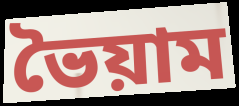
ভৈয়াম